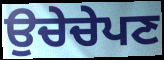
ਉਚੇਚੇਪਣ